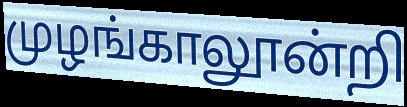
முழங்காலூன்றி